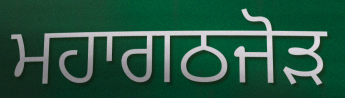
ਮਹਾਗਠਜੋੜ